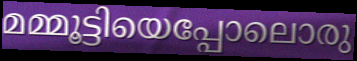
മമ്മൂട്ടിയെപ്പോലൊരു